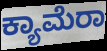
ಕ್ಯಾಮೆರಾ